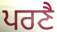
ਪਰਣੈ